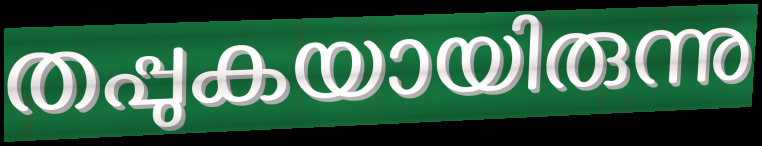
തപ്പുകയായിരുന്നു